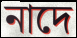
নাদে